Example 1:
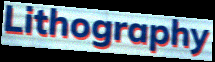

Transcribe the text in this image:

Lithography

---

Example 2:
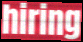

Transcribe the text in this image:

hiring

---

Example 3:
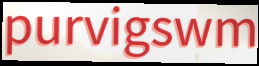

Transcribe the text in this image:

purvigswm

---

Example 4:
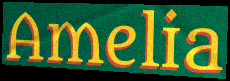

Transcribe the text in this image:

Amelia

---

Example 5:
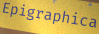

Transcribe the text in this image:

Epigraphica